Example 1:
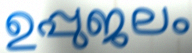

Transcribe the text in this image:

ഉപ്പുജലം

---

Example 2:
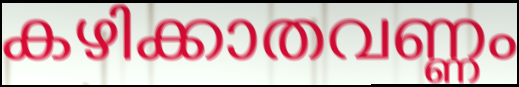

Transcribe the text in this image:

കഴിക്കാതവണ്ണം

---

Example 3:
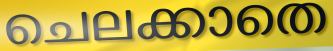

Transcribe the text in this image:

ചെലക്കാതെ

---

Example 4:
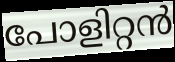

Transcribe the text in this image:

പോളിറ്റൻ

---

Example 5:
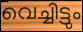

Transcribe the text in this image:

വെച്ചിട്ടും